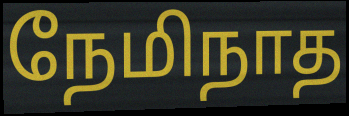
நேமிநாத